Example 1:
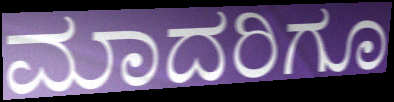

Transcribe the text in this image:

ಮಾದರಿಗೂ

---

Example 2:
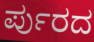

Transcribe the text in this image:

ರ್ಪುರದ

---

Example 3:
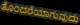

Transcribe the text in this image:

ತೊಂದರೆಯಾಗುವುದು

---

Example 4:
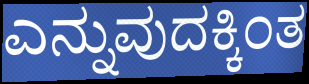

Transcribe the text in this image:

ಎನ್ನುವುದಕ್ಕಿಂತ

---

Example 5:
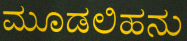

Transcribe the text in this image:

ಮೂಡಲಿಹನು